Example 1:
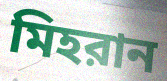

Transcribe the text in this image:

মিহরান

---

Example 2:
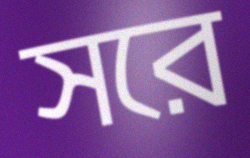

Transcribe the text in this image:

সরে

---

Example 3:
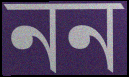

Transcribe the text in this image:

নন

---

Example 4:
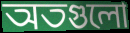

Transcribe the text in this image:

অতগুলো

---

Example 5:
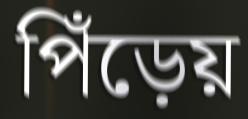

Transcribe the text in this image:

পিঁড়েয়